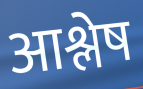
आश्लेष